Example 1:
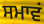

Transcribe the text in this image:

ਸਮਾਵਂ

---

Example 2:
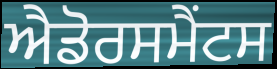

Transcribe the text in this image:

ਐਡੋਰਸਮੈਂਟਸ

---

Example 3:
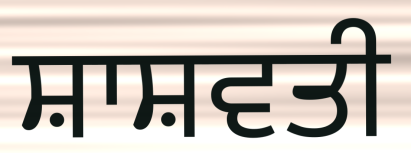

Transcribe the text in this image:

ਸ਼ਾਸ਼ਵਤੀ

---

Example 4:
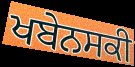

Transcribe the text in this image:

ਖਬੇਨਸਕੀ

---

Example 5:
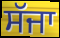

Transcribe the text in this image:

ਸੱਜਾ